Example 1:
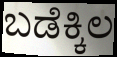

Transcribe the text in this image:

ಬಡೆಕ್ಕಿಲ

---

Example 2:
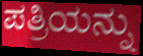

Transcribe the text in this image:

ಪತ್ರಿಯನ್ನು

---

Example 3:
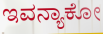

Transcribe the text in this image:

ಇವನ್ಯಾಕೋ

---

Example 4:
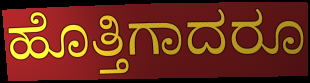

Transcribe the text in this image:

ಹೊತ್ತಿಗಾದರೂ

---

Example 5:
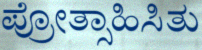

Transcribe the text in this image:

ಪ್ರೋತ್ಸಾಹಿಸಿತು